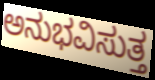
ಅನುಭವಿಸುತ್ತ